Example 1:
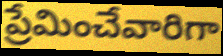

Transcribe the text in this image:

ప్రేమించేవారిగా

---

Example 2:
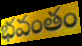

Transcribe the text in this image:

భవంతం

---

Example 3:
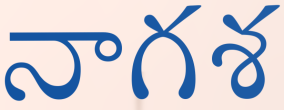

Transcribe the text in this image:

నాగశ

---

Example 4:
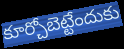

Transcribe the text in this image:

కూర్చోబెట్టేందుకు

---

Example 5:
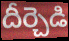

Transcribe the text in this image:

దీర్చెడి